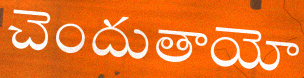
చెందుతాయో